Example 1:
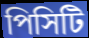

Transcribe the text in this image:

পিসিটি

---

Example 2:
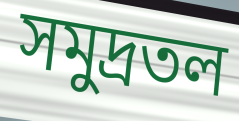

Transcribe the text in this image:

সমুদ্রতল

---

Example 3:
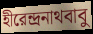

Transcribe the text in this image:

হীরেন্দ্রনাথবাবু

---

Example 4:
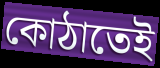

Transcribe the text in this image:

কোঠাতেই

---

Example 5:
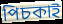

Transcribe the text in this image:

পিচকাই